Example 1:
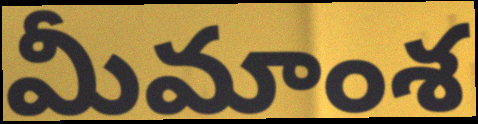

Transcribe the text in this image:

మీమాంశ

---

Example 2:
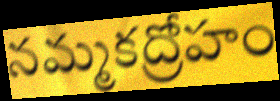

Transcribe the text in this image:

నమ్మకద్రోహం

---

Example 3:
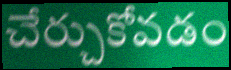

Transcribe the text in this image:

చేర్చుకోవడం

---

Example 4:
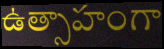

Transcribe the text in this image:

ఉత్సాహంగా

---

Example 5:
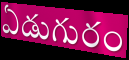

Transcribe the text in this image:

ఏడుగురం